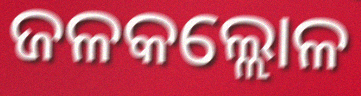
ଜଳକଲ୍ଲୋଳ